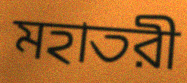
মহাতরী